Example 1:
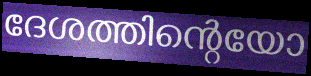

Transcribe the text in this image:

ദേശത്തിന്റെയോ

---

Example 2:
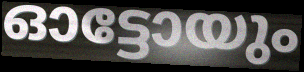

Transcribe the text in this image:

ഓട്ടോയും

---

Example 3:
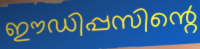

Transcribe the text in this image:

ഈഡിപ്പസിന്റെ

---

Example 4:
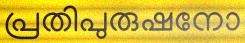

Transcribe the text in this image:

പ്രതിപുരുഷനോ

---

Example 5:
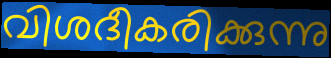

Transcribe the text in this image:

വിശദീകരിക്കുന്നു